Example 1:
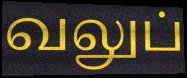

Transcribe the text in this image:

வலுப்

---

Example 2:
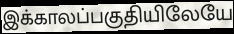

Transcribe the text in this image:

இக்காலப்பகுதியிலேயே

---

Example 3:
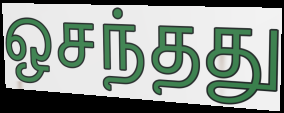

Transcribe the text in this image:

ஒசந்தது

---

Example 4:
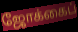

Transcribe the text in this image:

ஜோக்கைப்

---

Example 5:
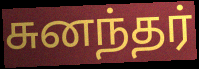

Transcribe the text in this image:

சுனந்தர்